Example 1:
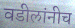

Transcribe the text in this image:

वडीलांनीच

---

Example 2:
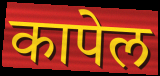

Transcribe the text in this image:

कापेल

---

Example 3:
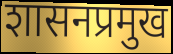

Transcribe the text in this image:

शासनप्रमुख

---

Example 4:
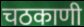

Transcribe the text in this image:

चठकाणी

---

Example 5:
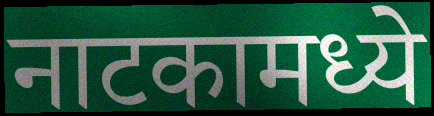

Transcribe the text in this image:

नाटकामध्ये